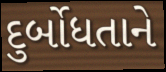
દુર્બોધતાને